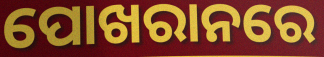
ପୋଖରାନରେ